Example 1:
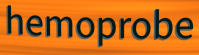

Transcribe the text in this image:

hemoprobe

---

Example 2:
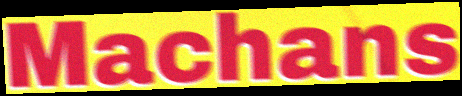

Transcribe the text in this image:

Machans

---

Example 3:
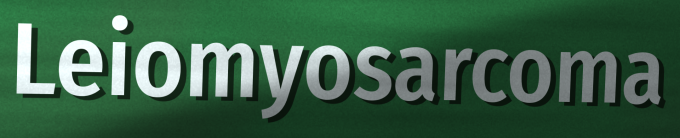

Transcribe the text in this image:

Leiomyosarcoma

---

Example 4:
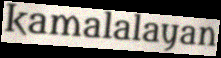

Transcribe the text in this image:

kamalalayan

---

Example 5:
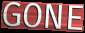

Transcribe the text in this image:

GONE